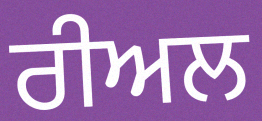
ਰੀਅਲ